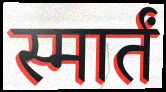
स्मार्तं